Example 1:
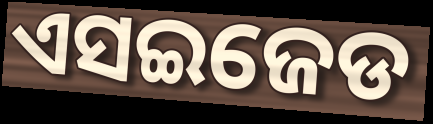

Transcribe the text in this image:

ଏସଇଜେଡ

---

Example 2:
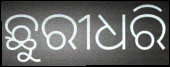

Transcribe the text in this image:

ଛୁରୀଧରି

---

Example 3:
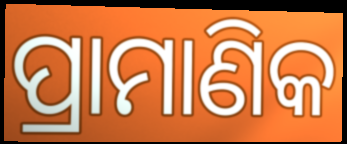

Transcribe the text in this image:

ପ୍ରାମାଣିକ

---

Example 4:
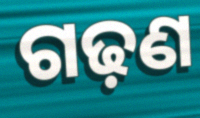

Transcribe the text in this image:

ଗଢ଼ଣ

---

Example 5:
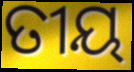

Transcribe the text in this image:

ତୀୟ